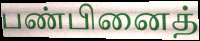
பண்பினைத்